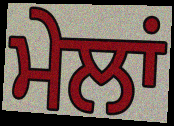
ਮੇਲਾਂ